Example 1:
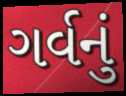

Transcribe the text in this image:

ગર્વનું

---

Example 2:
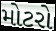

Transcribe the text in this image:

મોટરો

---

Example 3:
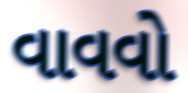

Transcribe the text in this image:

વાવવો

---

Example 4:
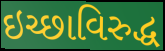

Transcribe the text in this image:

ઇચ્છાવિરુદ્ધ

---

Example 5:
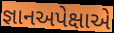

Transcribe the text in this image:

જ્ઞાનઅપેક્ષાએ